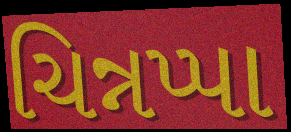
ચિન્નપ્પા